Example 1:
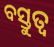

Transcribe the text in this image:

ବସ୍ତୁତ୍ୱ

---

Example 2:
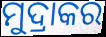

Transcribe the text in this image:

ମୁଦ୍ରାକର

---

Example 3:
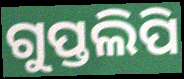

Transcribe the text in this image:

ଗୁପ୍ତଲିପି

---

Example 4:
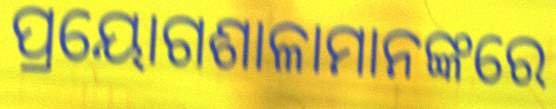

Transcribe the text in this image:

ପ୍ରୟୋଗଶାଳାମାନଙ୍କରେ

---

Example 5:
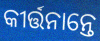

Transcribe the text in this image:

କୀର୍ତ୍ତନାନ୍ତେ